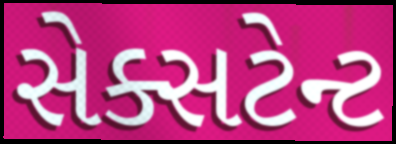
સેક્સટેન્ટ